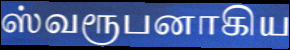
ஸ்வரூபனாகிய